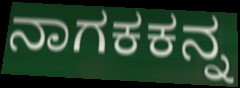
ನಾಗಕಕನ್ನ